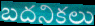
బదనికలు